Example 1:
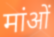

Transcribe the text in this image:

मांओं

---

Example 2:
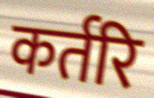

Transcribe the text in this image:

कर्तरि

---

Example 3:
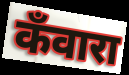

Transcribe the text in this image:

कँवारा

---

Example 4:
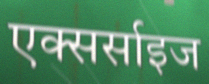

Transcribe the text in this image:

एक्सर्साइज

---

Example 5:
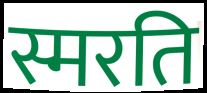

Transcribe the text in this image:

स्मरति